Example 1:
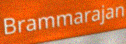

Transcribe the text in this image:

Brammarajan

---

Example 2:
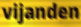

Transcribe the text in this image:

vijanden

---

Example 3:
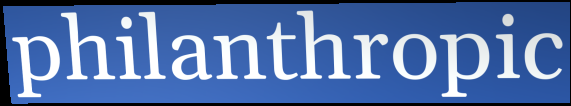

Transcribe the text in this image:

philanthropic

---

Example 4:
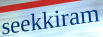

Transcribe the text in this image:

seekkiram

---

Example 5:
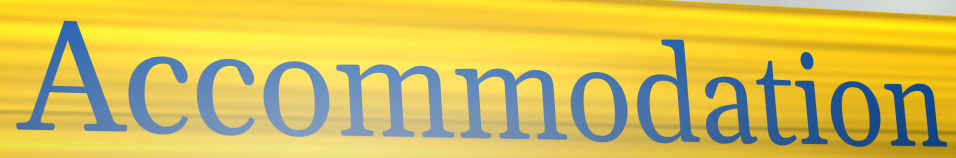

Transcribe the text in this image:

Accommodation